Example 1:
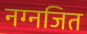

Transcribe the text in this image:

नग्नजित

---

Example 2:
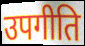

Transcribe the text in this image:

उपगीति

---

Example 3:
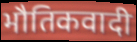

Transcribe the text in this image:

भौतिकवादी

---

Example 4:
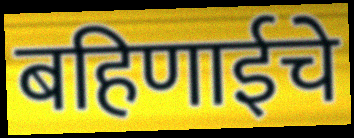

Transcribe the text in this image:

बहिणाईचे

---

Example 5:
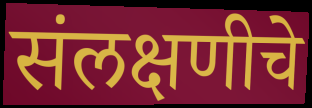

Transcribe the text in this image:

संलक्षणीचे